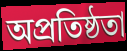
অপ্রতিষ্ঠতা